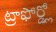
ట్రాఫోర్డ్లో